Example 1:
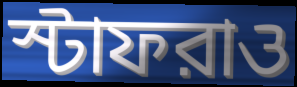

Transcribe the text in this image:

স্টাফরাও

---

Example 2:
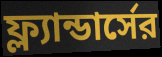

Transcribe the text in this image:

ফ্ল্যান্ডার্সের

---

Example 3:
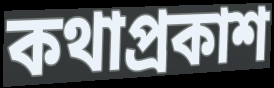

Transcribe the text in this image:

কথাপ্রকাশ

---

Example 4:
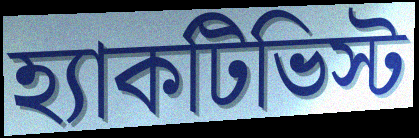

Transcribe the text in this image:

হ্যাকটিভিস্ট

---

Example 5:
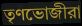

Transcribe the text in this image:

তৃণভোজীরা